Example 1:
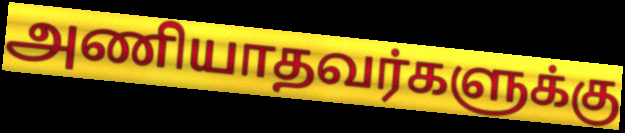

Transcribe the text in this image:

அணியாதவர்களுக்கு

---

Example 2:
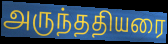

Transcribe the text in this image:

அருந்ததியரை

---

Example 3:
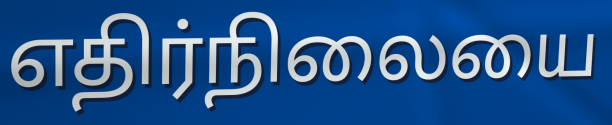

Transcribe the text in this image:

எதிர்நிலையை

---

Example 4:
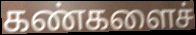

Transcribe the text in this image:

கண்களைச்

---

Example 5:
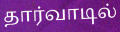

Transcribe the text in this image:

தார்வாடில்